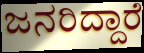
ಜನರಿದ್ದಾರೆ